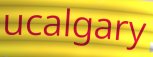
ucalgary